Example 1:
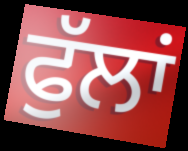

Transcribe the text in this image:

ਫੁੱਲਾਂ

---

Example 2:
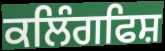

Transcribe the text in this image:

ਕਲਿੰਗਫਿਸ਼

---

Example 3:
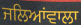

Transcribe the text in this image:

ਜਲਿਆਂਵਾਲਾ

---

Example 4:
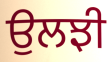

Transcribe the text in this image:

ਉਲਝੀ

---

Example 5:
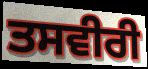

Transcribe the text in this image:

ਤਸਵੀਰੀ